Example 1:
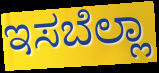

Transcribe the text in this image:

ಇಸಬೆಲ್ಲಾ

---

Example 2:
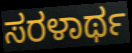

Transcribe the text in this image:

ಸರಳಾರ್ಥ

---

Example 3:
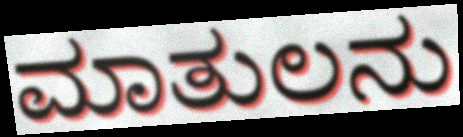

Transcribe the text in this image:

ಮಾತುಲನು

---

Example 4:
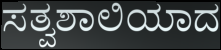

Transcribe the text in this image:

ಸತ್ವಶಾಲಿಯಾದ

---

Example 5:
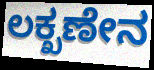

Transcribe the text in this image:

ಲಕ್ಖಣೇನ